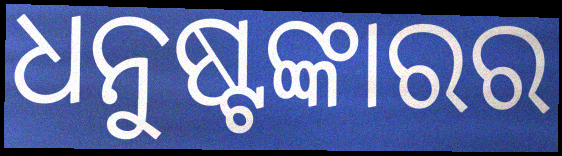
ଧନୁଷ୍ଟଙ୍କାରର